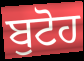
ਬੁਟੋਹ